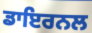
ਡਾਇਰਨਲ